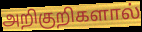
அறிகுறிகளால்